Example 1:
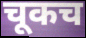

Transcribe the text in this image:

चूकच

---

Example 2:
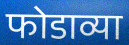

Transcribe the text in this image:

फोडाव्या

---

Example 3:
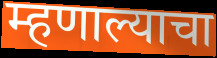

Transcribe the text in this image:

म्हणाल्याचा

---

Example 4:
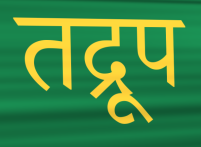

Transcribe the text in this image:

तद्रूप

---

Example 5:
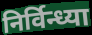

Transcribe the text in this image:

निर्विन्ध्या